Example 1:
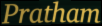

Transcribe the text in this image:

Pratham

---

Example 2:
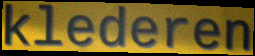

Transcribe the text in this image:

klederen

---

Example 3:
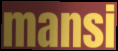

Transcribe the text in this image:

mansi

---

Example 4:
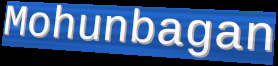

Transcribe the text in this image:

Mohunbagan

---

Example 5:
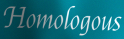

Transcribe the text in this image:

Homologous